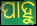
ପାହୁ